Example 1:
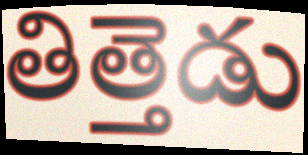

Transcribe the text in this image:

తిత్తెడు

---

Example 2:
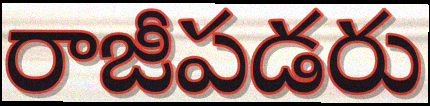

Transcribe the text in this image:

రాజీపడరు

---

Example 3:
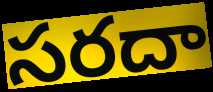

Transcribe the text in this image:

సరదా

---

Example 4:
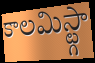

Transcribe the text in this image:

కాలమిస్ట్గా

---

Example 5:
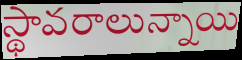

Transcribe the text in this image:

స్థావరాలున్నాయి